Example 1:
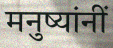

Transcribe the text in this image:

मनुष्यांनीं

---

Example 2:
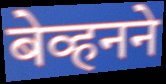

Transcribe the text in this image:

बेव्हनने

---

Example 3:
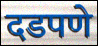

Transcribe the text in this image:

दडपणे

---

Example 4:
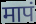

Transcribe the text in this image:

मापं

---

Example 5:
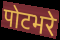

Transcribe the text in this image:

पोटभरे